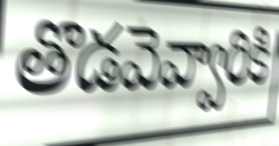
తొడవెవ్వారికి